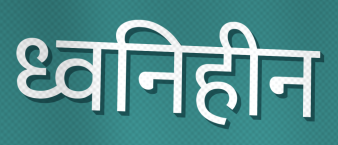
ध्वनिहीन